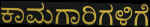
ಕಾಮಗಾರಿಗಳಿಗೆ